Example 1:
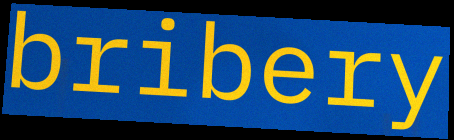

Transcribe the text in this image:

bribery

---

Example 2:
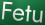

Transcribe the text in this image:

Fetu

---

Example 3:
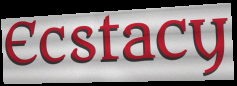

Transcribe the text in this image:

Ecstacy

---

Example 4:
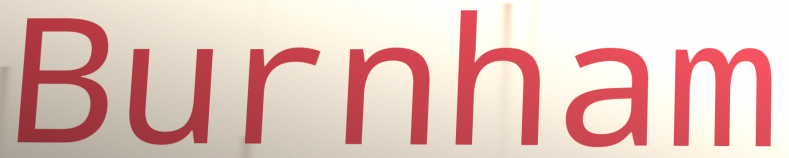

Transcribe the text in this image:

Burnham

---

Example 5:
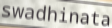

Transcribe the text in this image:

swadhinata